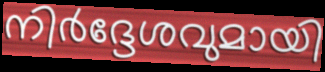
നിർദ്ദേശവുമായി